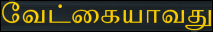
வேட்கையாவது